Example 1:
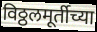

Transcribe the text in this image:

विठ्ठलमूर्तीच्या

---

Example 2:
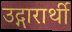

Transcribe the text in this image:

उद्गारार्थी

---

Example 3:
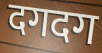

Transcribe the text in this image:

दगदग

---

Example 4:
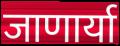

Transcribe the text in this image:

जाणार्या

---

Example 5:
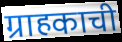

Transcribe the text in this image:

ग्राहकाची